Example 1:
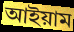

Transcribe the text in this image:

আইয়াম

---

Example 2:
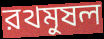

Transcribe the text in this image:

রথমুষল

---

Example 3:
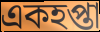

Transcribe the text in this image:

একহপ্তা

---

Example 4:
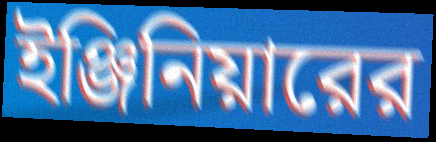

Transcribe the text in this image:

ইঞ্জিনিয়ারের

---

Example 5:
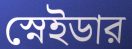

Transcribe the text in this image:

স্নেইডার